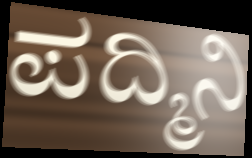
ಪದ್ಮಿನಿ